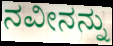
ನವೀನನ್ನು